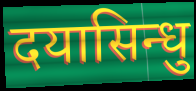
दयासिन्धु